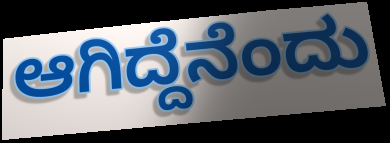
ಆಗಿದ್ದೆನೆಂದು